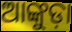
ଆଙ୍କୁଡ଼ା